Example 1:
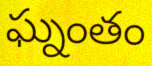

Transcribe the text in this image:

ఘ్నంతం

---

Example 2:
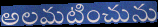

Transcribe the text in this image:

అలమటించును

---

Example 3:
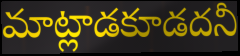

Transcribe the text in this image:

మాట్లాడకూడదనీ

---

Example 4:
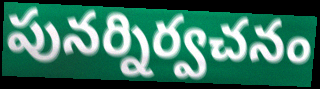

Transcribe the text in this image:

పునర్నిర్వచనం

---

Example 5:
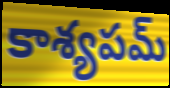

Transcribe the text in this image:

కాశ్యపమ్